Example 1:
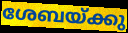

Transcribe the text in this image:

ശേബയ്ക്കു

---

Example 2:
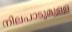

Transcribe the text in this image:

നിലപാടുമുള്ള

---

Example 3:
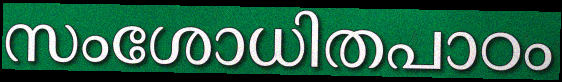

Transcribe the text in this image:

സംശോധിതപാഠം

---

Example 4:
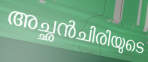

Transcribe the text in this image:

അച്ഛൻചിരിയുടെ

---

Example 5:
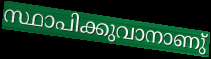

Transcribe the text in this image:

സ്ഥാപിക്കുവാനാണു്